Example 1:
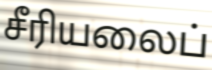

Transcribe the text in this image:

சீரியலைப்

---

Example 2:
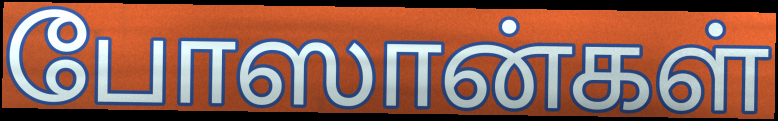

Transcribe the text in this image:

போஸான்கள்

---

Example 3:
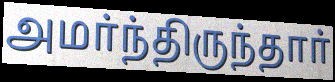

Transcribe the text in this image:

அமர்ந்திருந்தார்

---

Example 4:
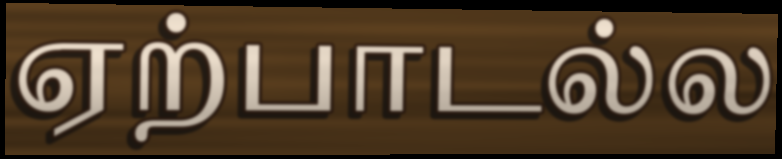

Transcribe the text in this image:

ஏற்பாடல்ல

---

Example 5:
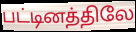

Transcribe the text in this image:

பட்டினத்திலே